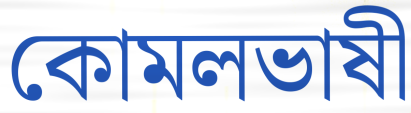
কোমলভাষী